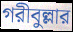
গরীবুল্লার